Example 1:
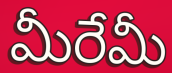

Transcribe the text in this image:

మీరేమీ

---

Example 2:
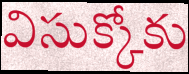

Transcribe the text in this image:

విసుక్కోకు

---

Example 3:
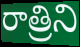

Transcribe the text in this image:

రాత్రిని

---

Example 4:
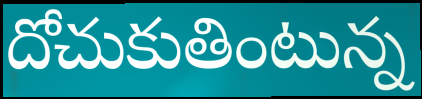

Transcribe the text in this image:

దోచుకుతింటున్న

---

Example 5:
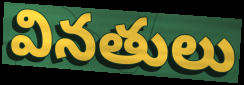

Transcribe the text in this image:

వినతులు